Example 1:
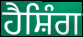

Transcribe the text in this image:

ਹੈਸ਼ਿੰਗ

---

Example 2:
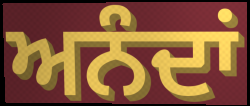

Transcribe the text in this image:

ਅਨੰਦਾਂ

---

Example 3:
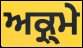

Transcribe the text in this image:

ਅਕ੍ਰ੍ਮੇ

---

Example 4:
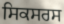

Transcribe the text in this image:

ਸਿਕਸਰਸ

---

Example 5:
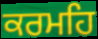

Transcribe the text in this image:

ਕਰਮਹਿ